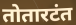
तोतारटंत